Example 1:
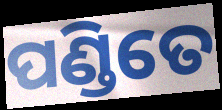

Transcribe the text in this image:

ପଣ୍ଡିତେ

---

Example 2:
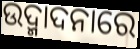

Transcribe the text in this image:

ଉଦ୍ମାଦନାରେ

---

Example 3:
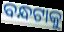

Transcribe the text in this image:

ବନ୍ଧଟାକୁ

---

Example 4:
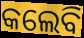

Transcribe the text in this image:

କଲେବି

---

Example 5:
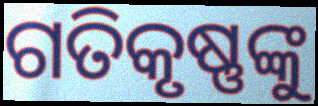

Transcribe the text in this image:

ଗତିକୃଷ୍ଣଙ୍କୁ